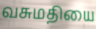
வசுமதியை